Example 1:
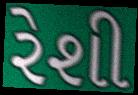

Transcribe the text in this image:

રેશી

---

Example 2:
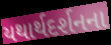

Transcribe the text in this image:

યથાર્થદર્શનના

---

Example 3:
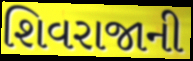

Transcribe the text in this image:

શિવરાજાની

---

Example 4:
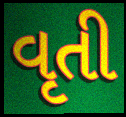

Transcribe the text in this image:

વૃતી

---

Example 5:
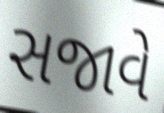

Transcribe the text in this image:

સજાવે